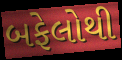
બફેલોથી